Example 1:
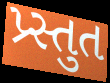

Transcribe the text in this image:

પ્ર્સ્તુત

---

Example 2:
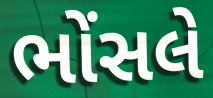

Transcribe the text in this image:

ભોંસલે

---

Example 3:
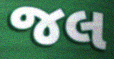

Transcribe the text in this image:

જલ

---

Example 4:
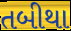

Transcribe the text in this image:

તબીથા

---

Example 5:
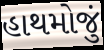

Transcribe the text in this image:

હાથમોજું